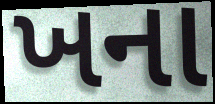
ખના